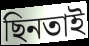
ছিনতাই